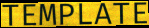
TEMPLATE